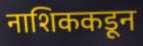
नाशिककडून